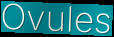
Ovules